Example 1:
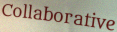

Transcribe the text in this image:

Collaborative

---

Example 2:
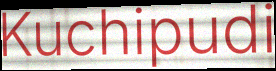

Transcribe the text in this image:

Kuchipudi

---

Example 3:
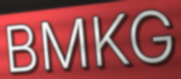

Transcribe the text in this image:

BMKG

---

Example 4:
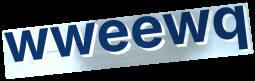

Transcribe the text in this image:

wweewq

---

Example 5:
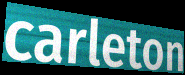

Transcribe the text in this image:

carleton